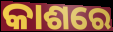
କାଶରେ